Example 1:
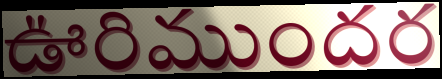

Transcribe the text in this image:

ఊరిముందర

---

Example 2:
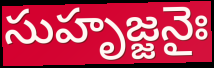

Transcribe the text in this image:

సుహృజ్జనైః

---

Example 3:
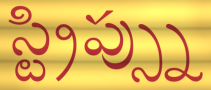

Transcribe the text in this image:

స్ట్రిప్స్ను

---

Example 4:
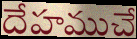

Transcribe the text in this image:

దేహముచే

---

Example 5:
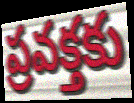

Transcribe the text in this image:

ప్రవక్తకు